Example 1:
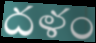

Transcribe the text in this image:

దళం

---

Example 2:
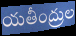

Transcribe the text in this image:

యతీంద్రుల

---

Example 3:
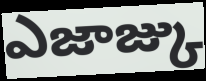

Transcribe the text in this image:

ఎజాజ్కు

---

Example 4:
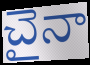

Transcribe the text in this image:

చైనా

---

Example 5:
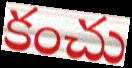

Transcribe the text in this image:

కంచు